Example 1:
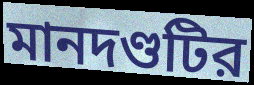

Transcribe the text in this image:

মানদণ্ডটির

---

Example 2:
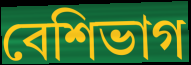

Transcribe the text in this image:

বেশিভাগ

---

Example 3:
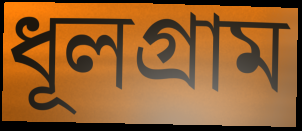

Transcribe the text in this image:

ধূলগ্রাম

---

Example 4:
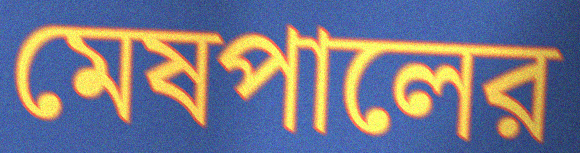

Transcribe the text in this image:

মেষপালের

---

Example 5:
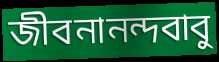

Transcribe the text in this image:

জীবনানন্দবাবু